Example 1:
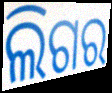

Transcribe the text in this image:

ଲିଗର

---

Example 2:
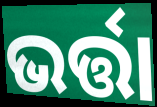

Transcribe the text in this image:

ଭର୍ତ୍ତା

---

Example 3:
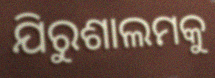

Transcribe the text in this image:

ଯିରୁଶାଲମକୁ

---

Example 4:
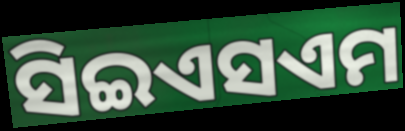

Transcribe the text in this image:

ସିଇଏସଏମ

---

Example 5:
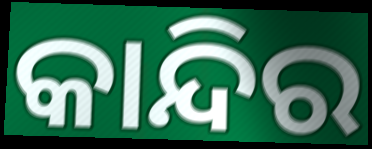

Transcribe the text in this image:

କାନ୍ଦିର